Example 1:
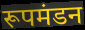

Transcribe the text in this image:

रूपमंडन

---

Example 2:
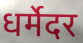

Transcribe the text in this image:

धर्मेदर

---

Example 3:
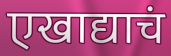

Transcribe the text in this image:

एखाद्याचं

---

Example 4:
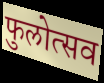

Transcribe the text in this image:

फुलोत्सव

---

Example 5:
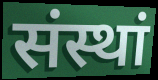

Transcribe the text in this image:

संस्थां